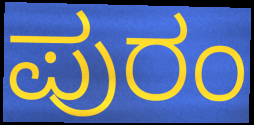
ಪುರಂ